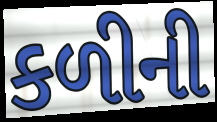
કળીની